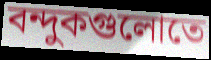
বন্দুকগুলোতে